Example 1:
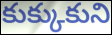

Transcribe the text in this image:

కుక్కుకుని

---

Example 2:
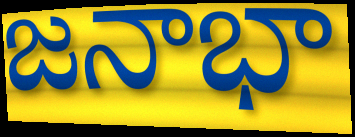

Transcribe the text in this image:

జనాభా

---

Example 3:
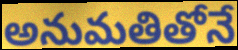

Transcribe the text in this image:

అనుమతితోనే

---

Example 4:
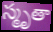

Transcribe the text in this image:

స్మృతా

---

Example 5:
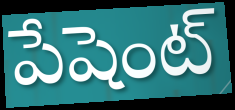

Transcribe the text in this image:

పేషెంట్